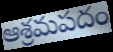
ఆశ్రమపదం